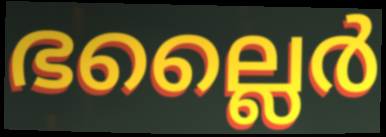
ഭല്ലൈർ